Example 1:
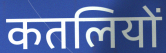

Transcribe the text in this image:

कतलियों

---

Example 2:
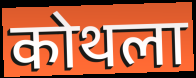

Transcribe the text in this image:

कोथला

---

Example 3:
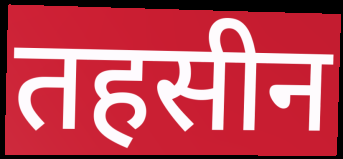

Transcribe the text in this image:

तहसीन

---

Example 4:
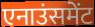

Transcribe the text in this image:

एनाउंसमेंट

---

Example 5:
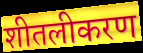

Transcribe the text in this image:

शीतलीकरण